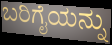
ಬರಿಗೈಯನ್ನು